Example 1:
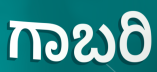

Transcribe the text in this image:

ಗಾಬರಿ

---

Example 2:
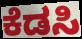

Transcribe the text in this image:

ಕೆಡಸಿ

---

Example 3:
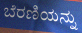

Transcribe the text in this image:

ಬೆರಣಿಯನ್ನು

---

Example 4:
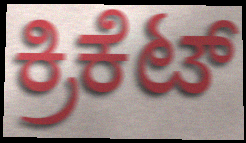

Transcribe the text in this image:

ಕ್ರಿಕೆಟ್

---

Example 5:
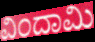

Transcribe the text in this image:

ವಿಂದಾಮಿ